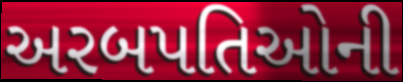
અરબપતિઓની